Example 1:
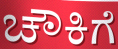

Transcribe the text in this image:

ಚೌಕಿಗೆ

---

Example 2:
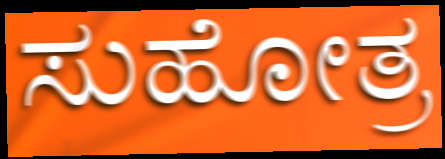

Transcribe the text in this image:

ಸುಹೋತ್ರ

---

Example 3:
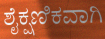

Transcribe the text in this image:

ಶೈಕ್ಷಣಿಕವಾಗಿ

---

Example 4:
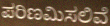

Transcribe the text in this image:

ಪರಿಣಮಿಸಲಿವೆ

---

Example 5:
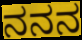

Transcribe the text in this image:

ನನನ